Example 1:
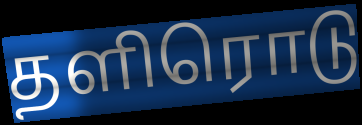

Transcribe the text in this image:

தளிரொடு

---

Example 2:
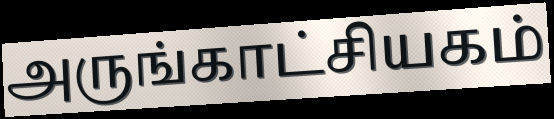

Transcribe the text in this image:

அருங்காட்சியகம்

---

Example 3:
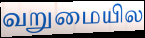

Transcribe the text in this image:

வறுமையில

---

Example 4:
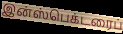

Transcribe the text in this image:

இன்ஸ்பெக்டரைப்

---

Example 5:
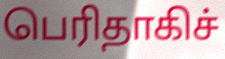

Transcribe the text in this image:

பெரிதாகிச்